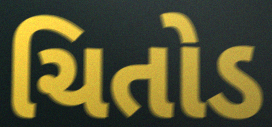
ચિતોડ